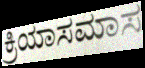
ಕ್ರಿಯಾಸಮಾಸ